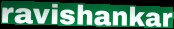
ravishankar